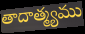
తాదాత్మ్యము